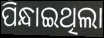
ପିନ୍ଧାଇଥିଲା